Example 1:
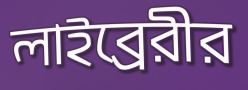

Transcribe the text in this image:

লাইব্রেরীর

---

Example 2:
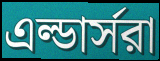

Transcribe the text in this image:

এল্ডার্সরা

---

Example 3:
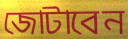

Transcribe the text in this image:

জোটাবেন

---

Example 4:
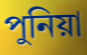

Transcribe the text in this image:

পুনিয়া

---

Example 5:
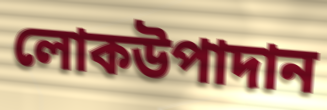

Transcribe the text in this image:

লোকউপাদান